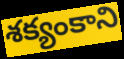
శక్యంకాని